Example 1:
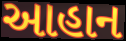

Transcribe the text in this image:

આહાન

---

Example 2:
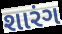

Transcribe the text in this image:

શારંગ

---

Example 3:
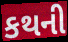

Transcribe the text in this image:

કથની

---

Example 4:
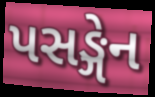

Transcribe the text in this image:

પસઙ્ગેન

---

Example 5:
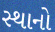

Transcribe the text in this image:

સ્થાનો